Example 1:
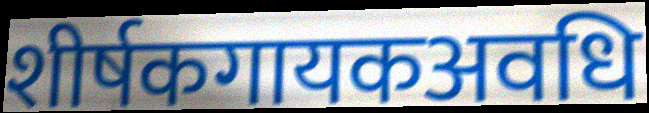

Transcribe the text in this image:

शीर्षकगायकअवधि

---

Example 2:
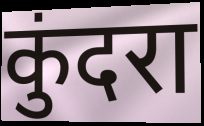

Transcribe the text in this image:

कुंदरा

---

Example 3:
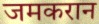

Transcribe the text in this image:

जमकरान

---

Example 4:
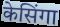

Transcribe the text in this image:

केसिंगा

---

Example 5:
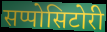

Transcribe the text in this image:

सप्पोसिटोरी